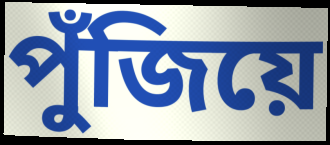
পুঁজিয়ে